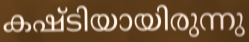
കഷ്ടിയായിരുന്നു